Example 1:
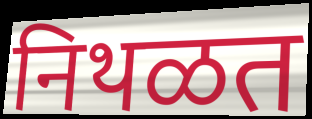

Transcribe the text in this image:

निथळत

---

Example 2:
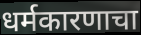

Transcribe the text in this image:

धर्मकारणाचा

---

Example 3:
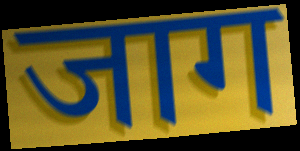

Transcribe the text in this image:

जाग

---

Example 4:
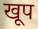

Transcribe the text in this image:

खूप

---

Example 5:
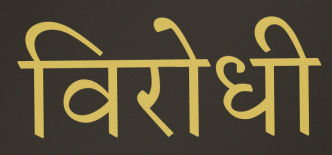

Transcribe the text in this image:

विरोधी